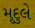
મૃદુલે